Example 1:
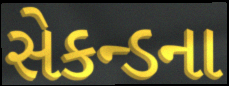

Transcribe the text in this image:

સેકન્ડના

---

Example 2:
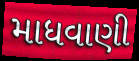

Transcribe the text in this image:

માધવાણી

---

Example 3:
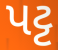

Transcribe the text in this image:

પટ્ટ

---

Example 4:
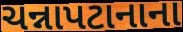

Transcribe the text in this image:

ચન્નાપટાનાના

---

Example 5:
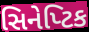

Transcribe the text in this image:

સિનેપ્ટિક